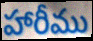
హారీము